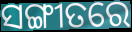
ସଙ୍ଗୀତରେ